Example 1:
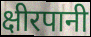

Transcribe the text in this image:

क्षीरपानी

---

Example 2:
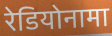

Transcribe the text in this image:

रेडियोनामा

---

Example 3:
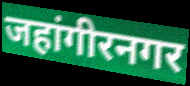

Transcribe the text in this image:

जहांगीरनगर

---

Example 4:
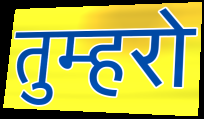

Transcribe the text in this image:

तुम्हरो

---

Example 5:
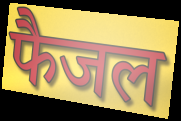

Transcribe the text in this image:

फैजल